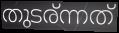
തുടര്ന്നത്